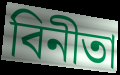
বিনীতা